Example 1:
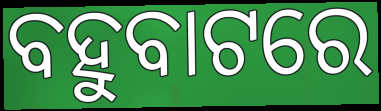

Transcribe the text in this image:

ବହୁବାଟରେ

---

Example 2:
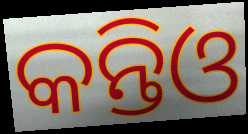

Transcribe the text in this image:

କନ୍ତିଓ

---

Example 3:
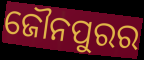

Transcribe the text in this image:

ଜୌନପୁରର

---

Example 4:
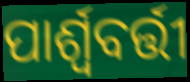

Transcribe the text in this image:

ପାର୍ଶ୍ୱବର୍ତ୍ତୀ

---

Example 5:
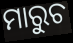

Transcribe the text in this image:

ମାରୁଚ